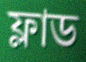
ফ্লাড